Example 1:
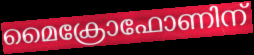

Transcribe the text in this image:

മൈക്രോഫോണിന്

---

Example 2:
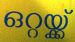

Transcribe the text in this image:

ഒറ്റയ്ക്ക്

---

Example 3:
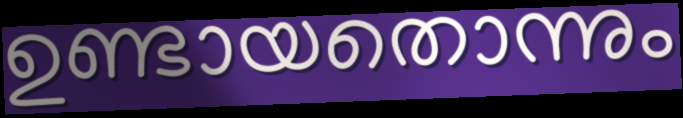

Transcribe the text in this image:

ഉണ്ടായതൊന്നും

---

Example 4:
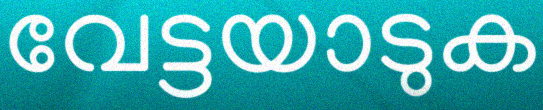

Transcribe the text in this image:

വേട്ടയാടുക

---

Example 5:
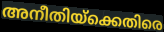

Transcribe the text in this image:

അനീതിയ്ക്കെതിരെ